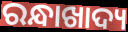
ରନ୍ଧାଖାଦ୍ୟ